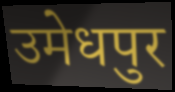
उमेधपुर